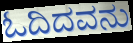
ಓದಿದವನು